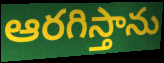
ఆరగిస్తాను